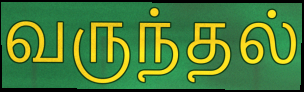
வருந்தல்